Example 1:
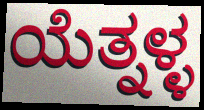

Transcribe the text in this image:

ಯೆತ್ನಳ್ಳ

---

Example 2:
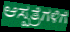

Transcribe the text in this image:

ಆಸ್ಪತ್ರೆಗಳಿಗೆ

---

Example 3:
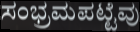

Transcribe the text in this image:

ಸಂಭ್ರಮಪಟ್ಟೆವು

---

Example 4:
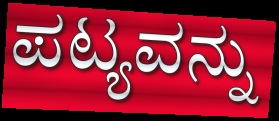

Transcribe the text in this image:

ಪಟ್ಯವನ್ನು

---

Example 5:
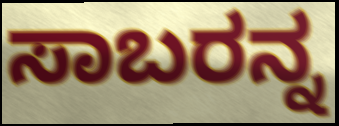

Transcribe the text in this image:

ಸಾಬರನ್ನ